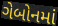
ગેબોનમાં